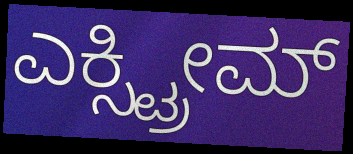
ಎಕ್ಸ್ಟ್ರೀಮ್